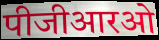
पीजीआरओ